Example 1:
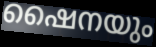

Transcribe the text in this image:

ഷൈനയും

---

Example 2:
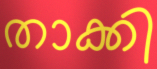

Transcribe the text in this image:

താക്കി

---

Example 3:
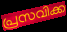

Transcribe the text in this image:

പ്രസവിക്ക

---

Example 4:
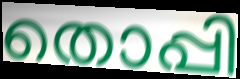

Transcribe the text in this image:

തൊപ്പി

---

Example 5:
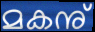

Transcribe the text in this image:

മകനു്